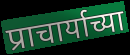
प्राचार्याच्या